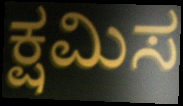
ಕ್ಷಮಿಸ